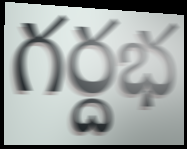
గర్దభ